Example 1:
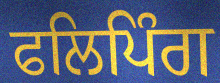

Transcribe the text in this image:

ਫਲਿਪਿੰਗ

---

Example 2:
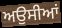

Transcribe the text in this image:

ਅਉਸੀਆਂ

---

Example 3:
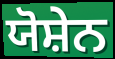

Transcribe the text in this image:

ਯੋਸ਼ੇਨ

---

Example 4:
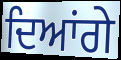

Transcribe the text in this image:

ਦਿਆਂਗੇ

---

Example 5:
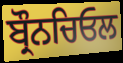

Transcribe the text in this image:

ਬ੍ਰੌਨਚਿਓਲ